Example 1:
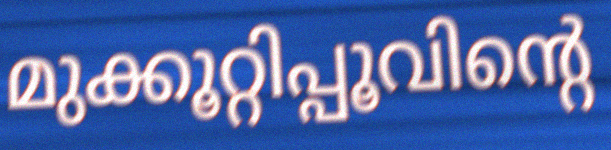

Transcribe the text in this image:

മുക്കൂറ്റിപ്പൂവിന്റെ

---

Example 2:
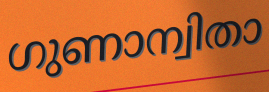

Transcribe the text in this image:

ഗുണാന്വിതാ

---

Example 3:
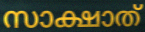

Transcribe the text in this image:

സാക്ഷാത്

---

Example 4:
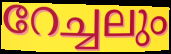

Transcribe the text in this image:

റേച്ചലും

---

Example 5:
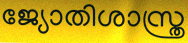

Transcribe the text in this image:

ജ്യോതിശാസ്ത്ര